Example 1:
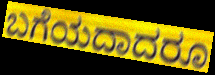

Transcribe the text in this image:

ಬಗೆಯದಾದರೂ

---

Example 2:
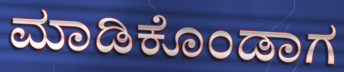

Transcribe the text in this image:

ಮಾಡಿಕೊಂಡಾಗ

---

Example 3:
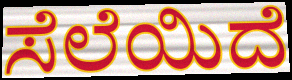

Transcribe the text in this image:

ಸೆಲೆಯಿದೆ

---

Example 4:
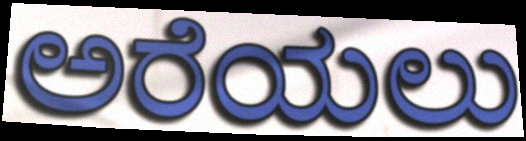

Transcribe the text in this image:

ಅರೆಯಲು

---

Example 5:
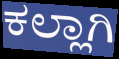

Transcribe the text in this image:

ಕಲ್ಲಾಗಿ